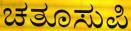
ಚತೂಸುಪಿ